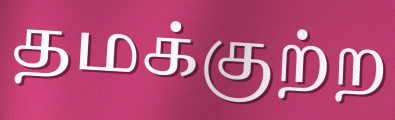
தமக்குற்ற